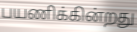
பயணிக்கின்றது